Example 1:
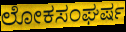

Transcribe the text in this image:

ಲೋಕಸಂಘರ್ಷ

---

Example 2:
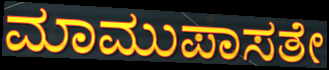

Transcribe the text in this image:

ಮಾಮುಪಾಸತೇ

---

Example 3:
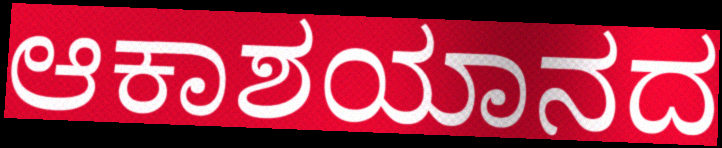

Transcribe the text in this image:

ಆಕಾಶಯಾನದ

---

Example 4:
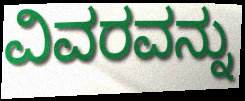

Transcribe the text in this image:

ವಿವರವನ್ನು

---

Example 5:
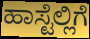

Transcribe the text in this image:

ಹಾಸ್ಟೆಲ್ಲಿಗೆ